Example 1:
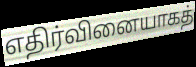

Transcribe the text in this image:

எதிர்வினையாகத்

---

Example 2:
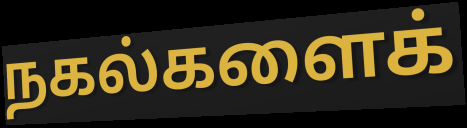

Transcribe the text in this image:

நகல்களைக்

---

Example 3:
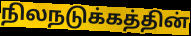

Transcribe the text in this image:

நிலநடுக்கத்தின்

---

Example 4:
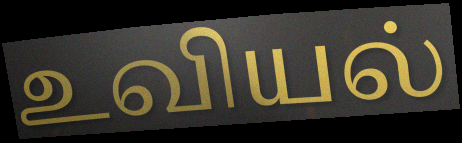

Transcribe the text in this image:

உவியல்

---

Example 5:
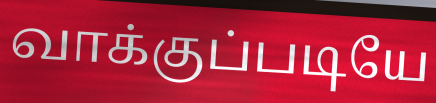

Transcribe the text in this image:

வாக்குப்படியே